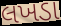
લખડા